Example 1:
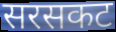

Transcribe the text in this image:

सरसकट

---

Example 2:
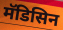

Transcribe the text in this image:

मॅडिसिन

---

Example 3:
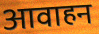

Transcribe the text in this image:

आवाहन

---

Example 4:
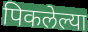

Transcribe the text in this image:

पिकलेल्या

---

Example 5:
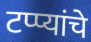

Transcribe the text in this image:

टप्प्यांचे